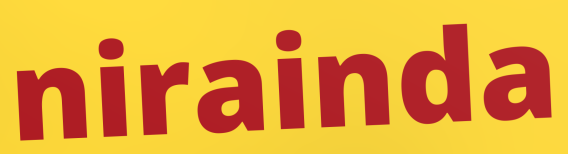
nirainda